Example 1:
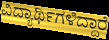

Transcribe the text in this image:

ವಿದ್ಯಾರ್ಥಿಗಳಿದ್ದಾರೆ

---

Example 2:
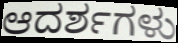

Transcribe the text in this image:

ಆದರ್ಶಗಳು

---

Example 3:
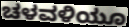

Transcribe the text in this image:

ಚಳವಳಿಯೂ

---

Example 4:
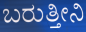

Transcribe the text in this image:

ಬರುತ್ತೀನಿ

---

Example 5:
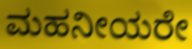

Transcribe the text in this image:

ಮಹನೀಯರೇ